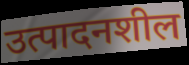
उत्पादनशील